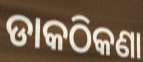
ଡାକଠିକଣା